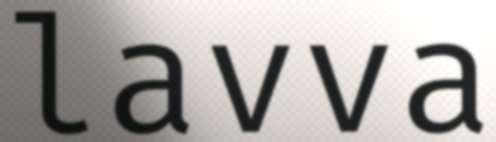
lavva